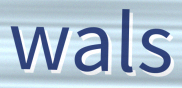
wals